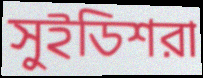
সুইডিশরা